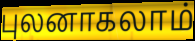
புலனாகலாம்